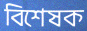
বিশেষক